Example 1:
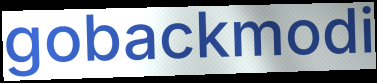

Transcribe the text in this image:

gobackmodi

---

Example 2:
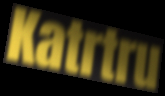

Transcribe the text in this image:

Katrtru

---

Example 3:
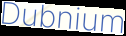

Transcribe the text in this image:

Dubnium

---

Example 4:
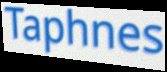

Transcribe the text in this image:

Taphnes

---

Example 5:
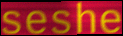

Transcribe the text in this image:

seshe